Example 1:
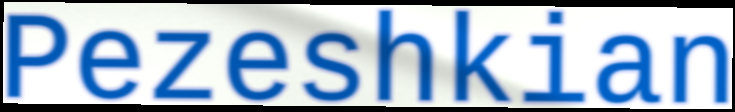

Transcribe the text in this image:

Pezeshkian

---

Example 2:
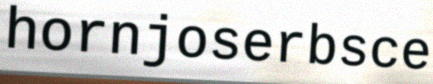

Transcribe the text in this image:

hornjoserbsce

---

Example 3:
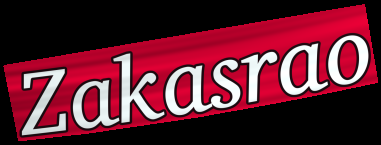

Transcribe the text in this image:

Zakasrao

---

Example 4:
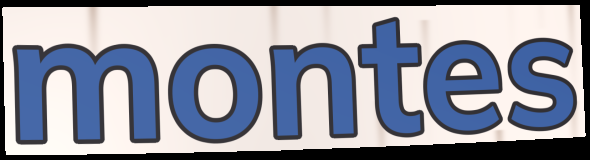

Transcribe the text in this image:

montes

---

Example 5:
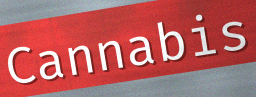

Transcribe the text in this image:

Cannabis